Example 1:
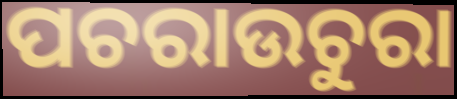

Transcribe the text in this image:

ପଚରାଉଚୁରା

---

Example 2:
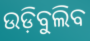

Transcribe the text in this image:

ଉଡ଼ିବୁଲିବ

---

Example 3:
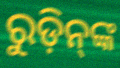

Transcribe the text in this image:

ରୁଡ଼ିନ୍‌ଙ୍କ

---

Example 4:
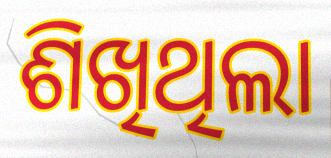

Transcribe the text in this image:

ଶିଖିଥିଲା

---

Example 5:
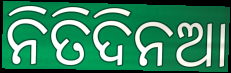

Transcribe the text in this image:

ନିତିଦିନଆ